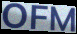
OFM